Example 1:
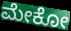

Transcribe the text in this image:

ಮೇಕೋ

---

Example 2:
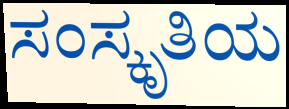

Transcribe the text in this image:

ಸಂಸ್ಕೃತಿಯ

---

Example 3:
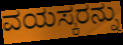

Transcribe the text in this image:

ವಯಸ್ಕರನ್ನು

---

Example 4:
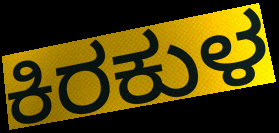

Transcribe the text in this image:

ಕಿರಕುಳ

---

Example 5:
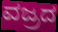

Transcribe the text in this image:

ವಜ್ರದ